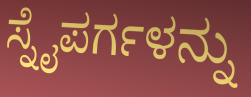
ಸ್ನೈಪರ್ಗಳನ್ನು